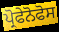
ਪ੍ਰੋਫੇਨੋਫੋਸ